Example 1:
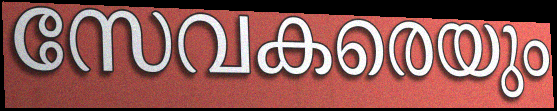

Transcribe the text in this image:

സേവകരെയും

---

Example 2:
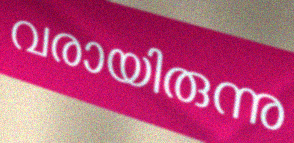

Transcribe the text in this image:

വരായിരുന്നു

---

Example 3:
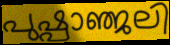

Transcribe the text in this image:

പുഷ്പാഞ്ജലി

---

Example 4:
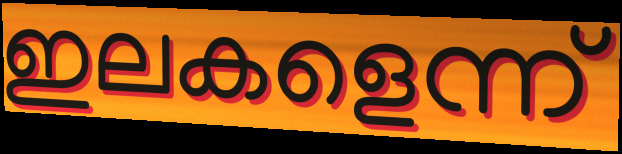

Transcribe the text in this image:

ഇലകളെന്ന്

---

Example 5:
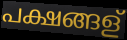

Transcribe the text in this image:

പക്ഷങ്ങള്